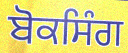
ਬੋਕਸਿੰਗ